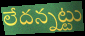
లేదన్నట్టు